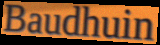
Baudhuin